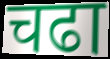
चढा